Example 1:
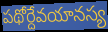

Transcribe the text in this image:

పథోర్దేవయానస్య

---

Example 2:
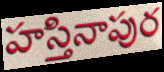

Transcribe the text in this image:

హస్తినాపుర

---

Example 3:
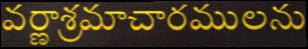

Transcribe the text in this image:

వర్ణాశ్రమాచారములను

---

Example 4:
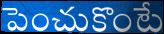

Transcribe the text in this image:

పెంచుకొంటే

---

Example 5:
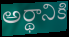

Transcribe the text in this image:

అర్థానికి